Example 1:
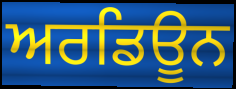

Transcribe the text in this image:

ਅਰਡਿਊਨ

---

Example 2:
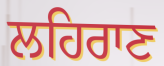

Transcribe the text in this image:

ਲਹਿਰਾਣ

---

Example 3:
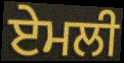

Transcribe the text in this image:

ਏਮਲੀ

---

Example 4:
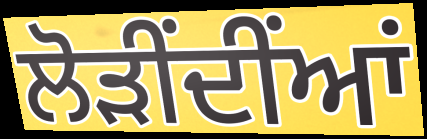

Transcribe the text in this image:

ਲੋੜੀਂਦੀਂਆਂ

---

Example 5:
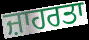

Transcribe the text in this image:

ਜ਼ਾਹਰਤਾ